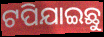
ଟପିଯାଇଛୁ